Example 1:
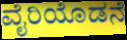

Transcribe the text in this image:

ವೈರಿಯೊಡನೆ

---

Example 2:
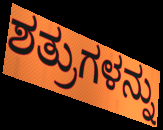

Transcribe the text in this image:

ಶತ್ರುಗಳನ್ನು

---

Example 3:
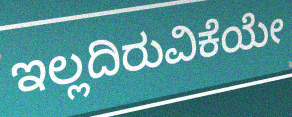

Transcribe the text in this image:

ಇಲ್ಲದಿರುವಿಕೆಯೇ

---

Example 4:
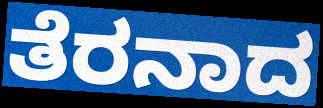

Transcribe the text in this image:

ತೆರನಾದ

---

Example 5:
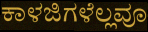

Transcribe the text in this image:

ಕಾಳಜಿಗಳೆಲ್ಲವೂ